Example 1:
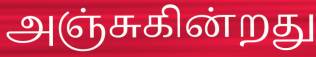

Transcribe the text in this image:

அஞ்சுகின்றது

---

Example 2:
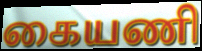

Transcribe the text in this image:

கையணி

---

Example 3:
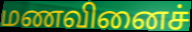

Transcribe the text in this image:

மணவினைச்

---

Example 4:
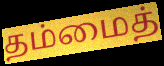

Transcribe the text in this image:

தம்மைத்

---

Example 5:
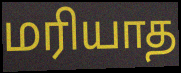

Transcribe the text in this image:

மரியாத